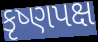
કૃષ્ણપક્ષ